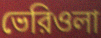
ভেরিওলা